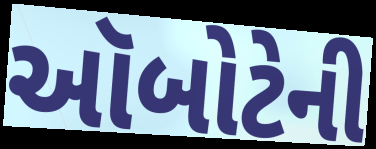
ઑબોટેની